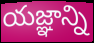
యజ్ఞాన్ని